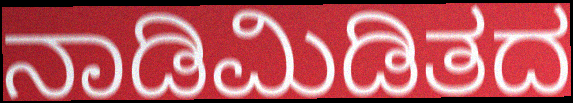
ನಾಡಿಮಿಡಿತದ